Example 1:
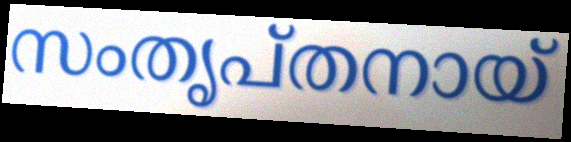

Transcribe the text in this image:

സംതൃപ്തനായ്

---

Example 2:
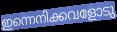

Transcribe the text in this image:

ഇന്നെനിക്കവളോടു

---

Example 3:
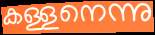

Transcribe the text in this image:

കള്ളനെന്നു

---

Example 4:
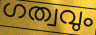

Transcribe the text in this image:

ഗത്വവും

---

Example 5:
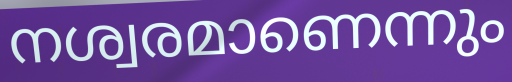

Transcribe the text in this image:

നശ്വരമാണെന്നും